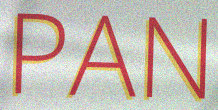
PAN